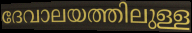
ദേവാലയത്തിലുള്ള